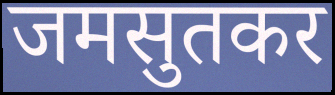
जमसुतकर